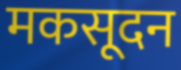
मकसूदन